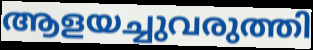
ആളയച്ചുവരുത്തി